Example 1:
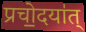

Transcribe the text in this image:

प्रचो॒दया॑त्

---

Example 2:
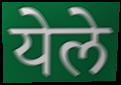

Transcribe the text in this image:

येले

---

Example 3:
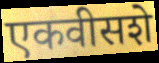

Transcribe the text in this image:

एकवीसशे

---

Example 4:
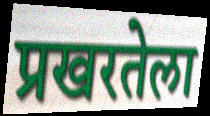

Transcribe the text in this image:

प्रखरतेला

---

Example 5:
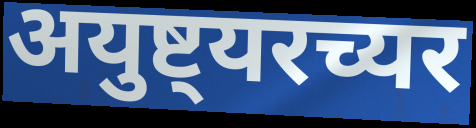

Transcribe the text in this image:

अयुष्ट्यरच्यर